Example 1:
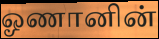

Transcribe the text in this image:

ஓணானின்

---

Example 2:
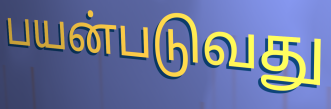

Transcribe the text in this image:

பயன்படுவது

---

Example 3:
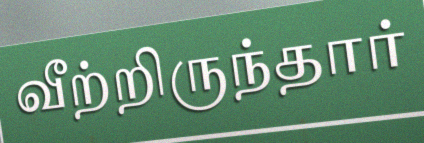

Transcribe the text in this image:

வீற்றிருந்தார்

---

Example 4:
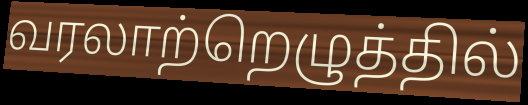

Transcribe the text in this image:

வரலாற்றெழுத்தில்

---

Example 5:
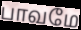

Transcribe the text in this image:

பாவமே